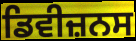
ਡਿਵੀਜ਼ਨਸ